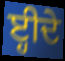
ੲ੍ਹੀਦੇ